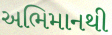
અભિમાનથી